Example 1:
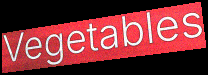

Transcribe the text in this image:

Vegetables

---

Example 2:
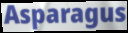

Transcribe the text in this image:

Asparagus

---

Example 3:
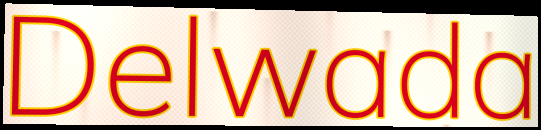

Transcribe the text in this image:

Delwada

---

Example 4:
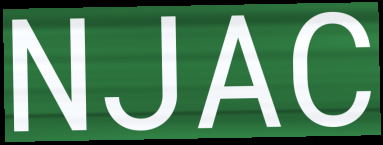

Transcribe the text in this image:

NJAC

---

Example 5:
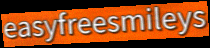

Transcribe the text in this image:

easyfreesmileys